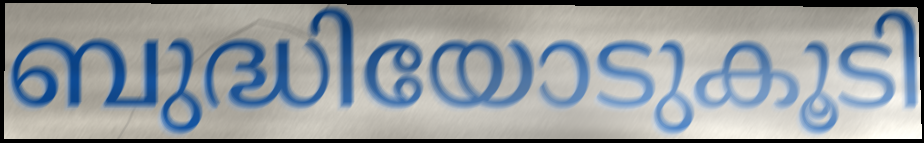
ബുദ്ധിയോടുകൂടി